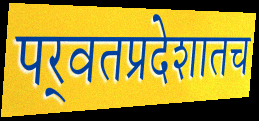
पर्वतप्रदेशातच